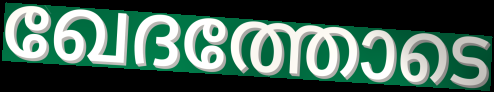
ഖേദത്തോടെ